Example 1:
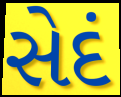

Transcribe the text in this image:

સેદં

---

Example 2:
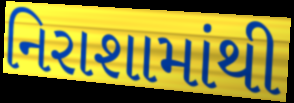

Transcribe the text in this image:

નિરાશામાંથી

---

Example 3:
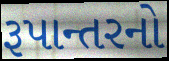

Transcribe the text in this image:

રૂપાન્તરનો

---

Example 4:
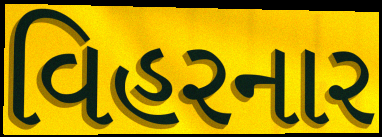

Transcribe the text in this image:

વિહરનાર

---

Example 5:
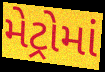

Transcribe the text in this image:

મેટ્રોમાં